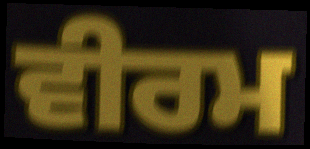
ਵੀਰਮ